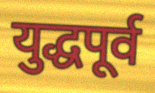
युद्धपूर्व